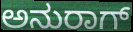
ಅನುರಾಗ್